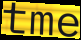
tme